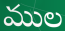
ముల